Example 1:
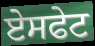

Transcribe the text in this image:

ਏਸਫੇਟ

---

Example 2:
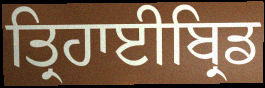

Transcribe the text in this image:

ਤ੍ਰਿਹਾਈਬ੍ਰਿਡ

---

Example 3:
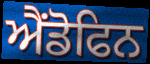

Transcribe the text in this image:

ਐਂਡੋਫਿਨ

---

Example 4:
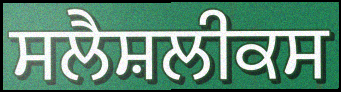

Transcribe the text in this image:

ਸਲੈਸ਼ਲੀਕਸ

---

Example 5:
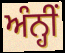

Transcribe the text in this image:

ਅੰਨ੍ਹੀਂ